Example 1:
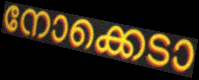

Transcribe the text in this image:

നോക്കെടാ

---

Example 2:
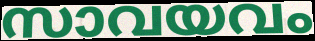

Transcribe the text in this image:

സാവയവം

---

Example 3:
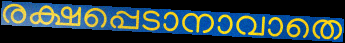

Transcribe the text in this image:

രക്ഷപ്പെടാനാവാതെ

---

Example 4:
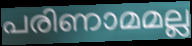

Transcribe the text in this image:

പരിണാമമല്ല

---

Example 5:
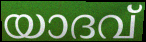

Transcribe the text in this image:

യാദവ്